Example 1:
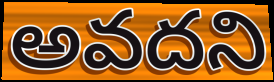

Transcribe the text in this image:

అవదని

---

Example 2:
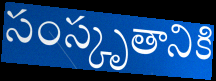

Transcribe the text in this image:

సంస్కృతానికి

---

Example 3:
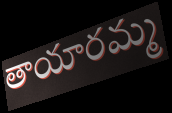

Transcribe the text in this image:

తాయారమ్మ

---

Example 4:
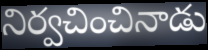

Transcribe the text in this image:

నిర్వచించినాడు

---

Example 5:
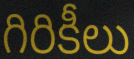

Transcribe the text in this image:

గిరికీలు